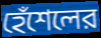
হেঁশেলের